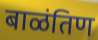
बाळंतिण